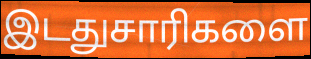
இடதுசாரிகளை